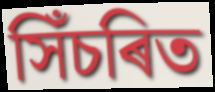
সিঁচৰিত